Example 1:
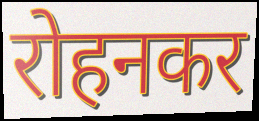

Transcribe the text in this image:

रोहनकर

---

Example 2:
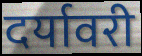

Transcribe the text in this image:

दर्यावरी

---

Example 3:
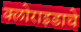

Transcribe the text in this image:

क्लोराइडाचे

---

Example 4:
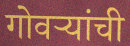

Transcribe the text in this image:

गोवऱ्यांची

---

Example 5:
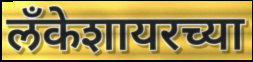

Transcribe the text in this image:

लँकेशायरच्या